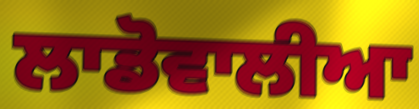
ਲਾਡੋਵਾਲੀਆ